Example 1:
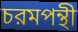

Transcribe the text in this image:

চরমপন্থী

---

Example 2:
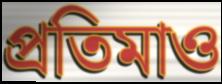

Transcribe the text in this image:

প্রতিমাও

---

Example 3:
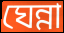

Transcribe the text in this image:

ঘেন্না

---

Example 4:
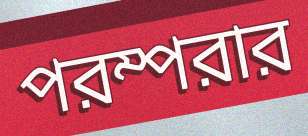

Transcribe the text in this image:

পরম্পরার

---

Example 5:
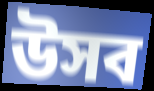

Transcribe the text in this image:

উসব